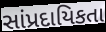
સાંપ્રદાયિકતા